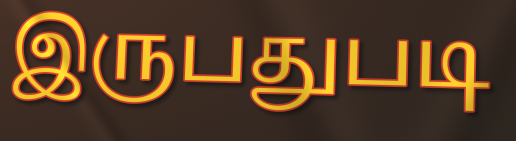
இருபதுபடி